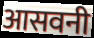
आसवनी